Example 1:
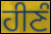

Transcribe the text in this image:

ਹੀਣੰ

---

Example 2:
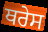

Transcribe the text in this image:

ਥਰੇਸ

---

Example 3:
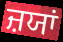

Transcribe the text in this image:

ਜ਼ਯਾਂ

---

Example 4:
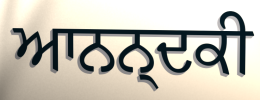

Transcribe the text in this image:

ਆਨਨ੍ਦਕੀ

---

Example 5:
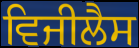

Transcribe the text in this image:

ਵਿਜੀਲੈਸ